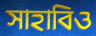
সাহাবিও